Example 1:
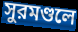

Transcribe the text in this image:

সুরমণ্ডলে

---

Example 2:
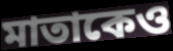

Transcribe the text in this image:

মাতাকেও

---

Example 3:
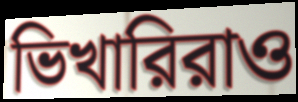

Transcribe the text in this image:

ভিখারিরাও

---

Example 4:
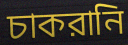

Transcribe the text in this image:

চাকরানি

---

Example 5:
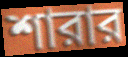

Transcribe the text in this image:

শারার